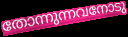
തോന്നുന്നവനോടു